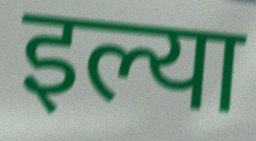
इल्या